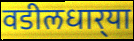
वडीलधार्‍या